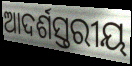
ଆଦର୍ଶସ୍ତରୀୟ